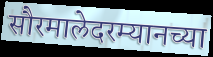
सौरमालेदरम्यानच्या